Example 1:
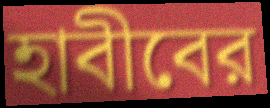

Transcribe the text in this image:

হাবীবের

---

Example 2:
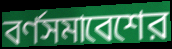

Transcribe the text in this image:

বর্ণসমাবেশের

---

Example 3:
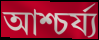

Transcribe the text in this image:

আশ্চর্য্য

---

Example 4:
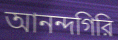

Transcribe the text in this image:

আনন্দগিরি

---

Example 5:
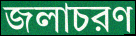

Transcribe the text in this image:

জলাচরণ